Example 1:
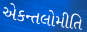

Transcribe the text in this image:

એકન્તલોમીતિ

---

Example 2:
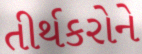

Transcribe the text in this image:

તીર્થકરોને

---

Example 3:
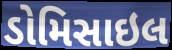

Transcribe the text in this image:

ડોમિસાઇલ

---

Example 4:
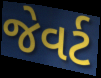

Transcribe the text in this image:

જેવર્ટ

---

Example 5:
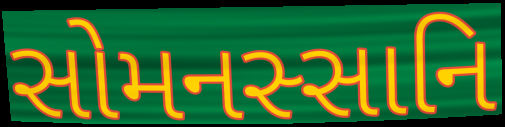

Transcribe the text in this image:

સોમનસ્સાનિ